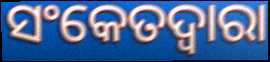
ସଂକେତଦ୍ଵାରା